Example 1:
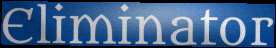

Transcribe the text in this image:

Eliminator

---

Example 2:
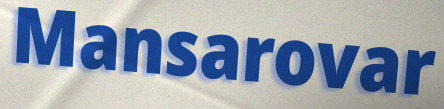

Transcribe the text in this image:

Mansarovar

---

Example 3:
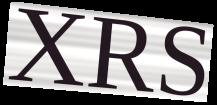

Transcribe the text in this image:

XRS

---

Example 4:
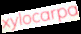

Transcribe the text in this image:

xylocarpa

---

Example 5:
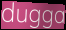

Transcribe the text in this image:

dugga